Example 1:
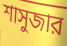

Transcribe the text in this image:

শাসুজার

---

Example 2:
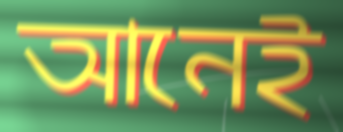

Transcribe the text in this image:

আনেই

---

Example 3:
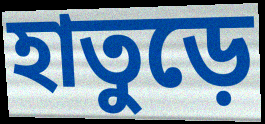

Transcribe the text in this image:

হাতুড়ে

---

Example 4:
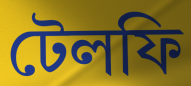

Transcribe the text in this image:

টেলফি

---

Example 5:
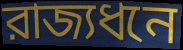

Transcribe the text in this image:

রাজ্যধনে